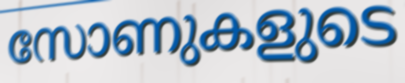
സോണുകളുടെ